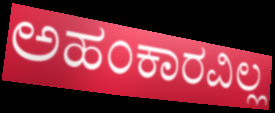
ಅಹಂಕಾರವಿಲ್ಲ